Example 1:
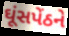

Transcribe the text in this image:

ઘૂંસપેંઠને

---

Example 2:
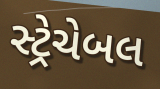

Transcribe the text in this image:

સ્ટ્રેચેબલ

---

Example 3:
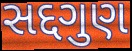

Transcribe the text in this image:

સદ્દગુણ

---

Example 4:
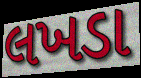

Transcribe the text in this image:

લખડા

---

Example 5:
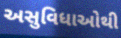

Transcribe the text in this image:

અસુવિધાઓથી